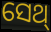
ସେଥ୍